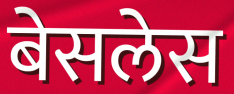
बेसलेस